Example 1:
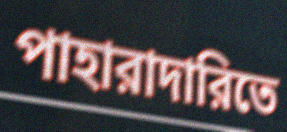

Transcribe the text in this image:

পাহারাদারিতে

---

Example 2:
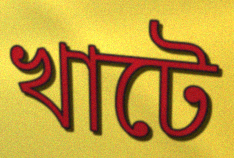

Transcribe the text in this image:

খাটে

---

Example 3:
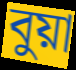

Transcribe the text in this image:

বুয়া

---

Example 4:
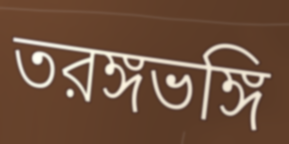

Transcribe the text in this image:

তরঙ্গভঙ্গি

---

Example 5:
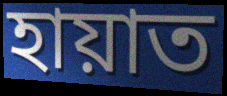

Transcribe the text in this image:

হায়াত